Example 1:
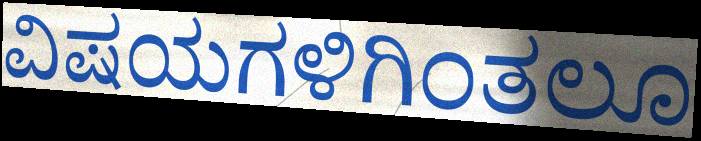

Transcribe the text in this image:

ವಿಷಯಗಳಿಗಿಂತಲೂ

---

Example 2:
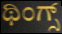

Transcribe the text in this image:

ಥಿಂಗ್ಸ್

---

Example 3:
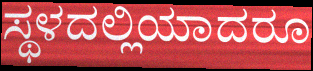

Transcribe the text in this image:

ಸ್ಥಳದಲ್ಲಿಯಾದರೂ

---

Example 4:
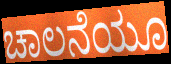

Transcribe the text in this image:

ಚಾಲನೆಯೂ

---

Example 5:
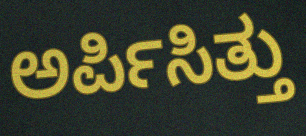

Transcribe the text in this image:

ಅರ್ಪಿಸಿತ್ತು